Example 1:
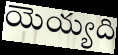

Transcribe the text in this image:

యెయ్యది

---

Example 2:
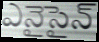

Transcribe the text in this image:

ఎనైసైన్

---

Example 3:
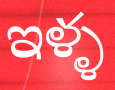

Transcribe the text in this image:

ఇళ్ళ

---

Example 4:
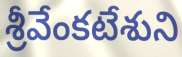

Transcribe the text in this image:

శ్రీవేంకటేశుని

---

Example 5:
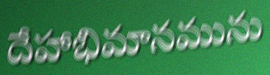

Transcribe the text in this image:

దేహాభిమానమును